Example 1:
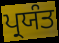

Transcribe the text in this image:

ਪ੍ਰਯੰਤ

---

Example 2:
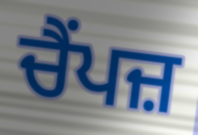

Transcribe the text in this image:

ਚੈਂਪਜ਼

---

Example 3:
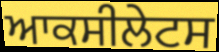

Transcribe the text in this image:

ਆਕਸੀਲੇਟਸ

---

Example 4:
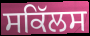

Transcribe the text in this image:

ਸਕਿੱਲਸ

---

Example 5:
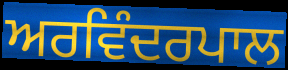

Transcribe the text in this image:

ਅਰਵਿੰਦਰਪਾਲ